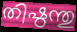
തിഷ്ഠന്തു